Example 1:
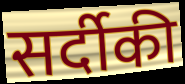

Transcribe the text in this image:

सर्दीकी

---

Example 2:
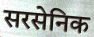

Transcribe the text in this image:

सरसेनिक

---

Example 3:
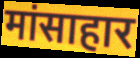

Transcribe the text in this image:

मांसाहार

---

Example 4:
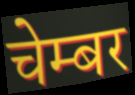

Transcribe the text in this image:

चेम्बर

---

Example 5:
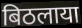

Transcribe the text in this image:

बिठलाया